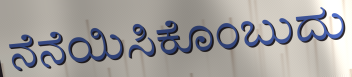
ನೆನೆಯಿಸಿಕೊಂಬುದು